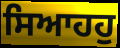
ਸਿਆਹਹੁ